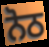
ਨੋਠ